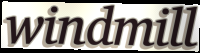
windmill